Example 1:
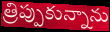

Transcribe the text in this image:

త్రిప్పుకున్నాను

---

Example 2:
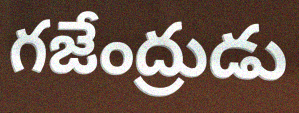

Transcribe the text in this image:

గజేంద్రుడు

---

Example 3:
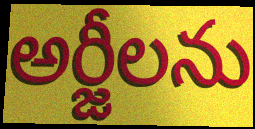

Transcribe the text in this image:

అర్జీలను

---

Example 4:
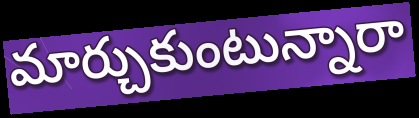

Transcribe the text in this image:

మార్చుకుంటున్నారా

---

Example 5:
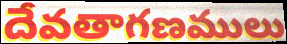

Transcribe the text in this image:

దేవతాగణములు